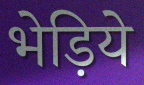
भेड़िये